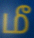
மீ